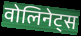
वोलिनेट्स